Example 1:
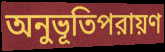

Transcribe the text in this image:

অনুভূতিপরায়ণ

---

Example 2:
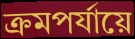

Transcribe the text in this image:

ক্রমপর্যায়ে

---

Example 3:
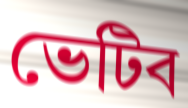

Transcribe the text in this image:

ভেটিব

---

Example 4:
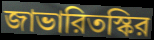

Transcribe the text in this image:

জাভারিতস্কির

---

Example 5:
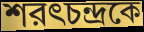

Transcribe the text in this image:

শরৎচন্দ্রকে